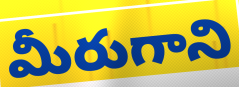
మీరుగాని